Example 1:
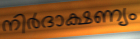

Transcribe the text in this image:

നിർദാക്ഷണ്യം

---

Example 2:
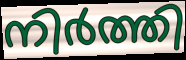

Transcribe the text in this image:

നിർത്തി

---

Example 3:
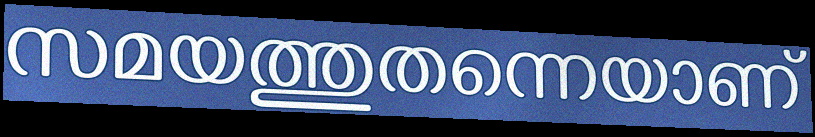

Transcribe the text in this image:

സമയത്തുതന്നെയാണ്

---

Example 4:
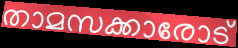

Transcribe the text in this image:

താമസക്കാരോട്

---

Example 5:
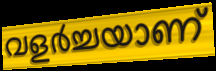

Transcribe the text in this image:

വളർച്ചയാണ്